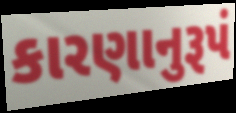
કારણાનુરૂપં